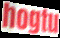
hogtu